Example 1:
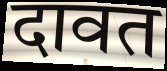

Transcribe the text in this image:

दावत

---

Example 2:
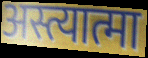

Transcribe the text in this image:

अस्त्यात्मा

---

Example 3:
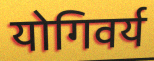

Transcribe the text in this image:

योगिवर्य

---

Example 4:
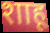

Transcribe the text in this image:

शाहू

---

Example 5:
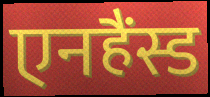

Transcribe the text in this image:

एनहैंस्ड